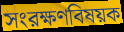
সংরক্ষণবিষয়ক